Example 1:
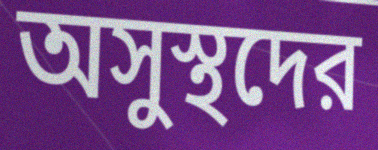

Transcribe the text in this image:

অসুস্থদের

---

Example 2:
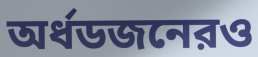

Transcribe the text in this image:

অর্ধডজনেরও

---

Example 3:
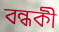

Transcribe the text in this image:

বন্ধকী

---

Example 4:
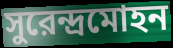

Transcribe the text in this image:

সুরেন্দ্রমোহন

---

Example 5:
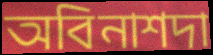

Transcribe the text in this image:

অবিনাশদা